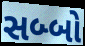
સબ્બો